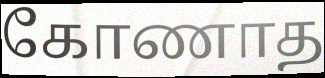
கோணாத